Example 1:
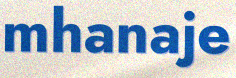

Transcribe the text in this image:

mhanaje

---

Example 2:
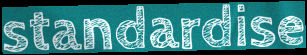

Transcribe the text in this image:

standardise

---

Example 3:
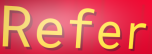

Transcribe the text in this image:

Refer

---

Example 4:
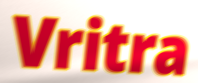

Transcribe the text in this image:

Vritra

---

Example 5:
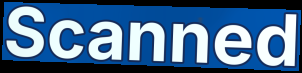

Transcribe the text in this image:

Scanned